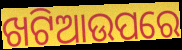
ଖଟିଆଉପରେ